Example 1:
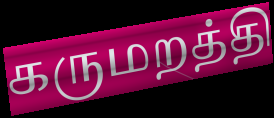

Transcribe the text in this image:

கருமறத்தி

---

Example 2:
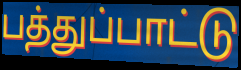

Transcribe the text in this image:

பத்துப்பாட்டு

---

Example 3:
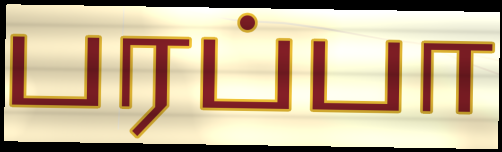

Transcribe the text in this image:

பரப்பா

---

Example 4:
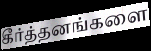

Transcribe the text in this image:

கீர்த்தனங்களை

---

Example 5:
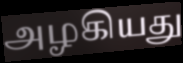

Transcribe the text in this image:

அழகியது